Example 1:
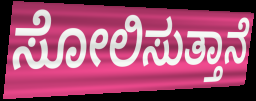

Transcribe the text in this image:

ಸೋಲಿಸುತ್ತಾನೆ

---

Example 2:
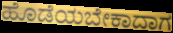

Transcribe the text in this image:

ಹೊಡೆಯಬೇಕಾದಾಗ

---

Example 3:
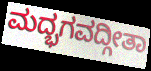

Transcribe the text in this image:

ಮದ್ಭಗವದ್ಗೀತಾ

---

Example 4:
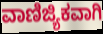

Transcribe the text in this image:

ವಾಣಿಜ್ಯಿಕವಾಗಿ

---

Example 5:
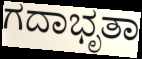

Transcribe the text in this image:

ಗದಾಭೃತಾ